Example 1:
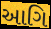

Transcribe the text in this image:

આગિ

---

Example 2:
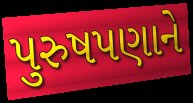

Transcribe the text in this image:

પુરુષપણાને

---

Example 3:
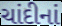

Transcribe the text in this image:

ચાંદીનાં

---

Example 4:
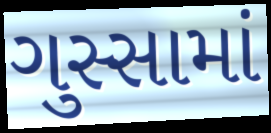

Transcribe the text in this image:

ગુસ્સામાં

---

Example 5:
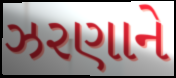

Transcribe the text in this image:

ઝરણાને